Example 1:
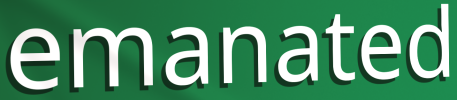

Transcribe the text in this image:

emanated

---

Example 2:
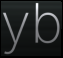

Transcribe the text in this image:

yb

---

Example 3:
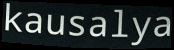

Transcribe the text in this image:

kausalya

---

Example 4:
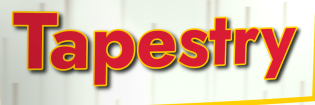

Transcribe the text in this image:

Tapestry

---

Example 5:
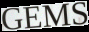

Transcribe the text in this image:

GEMS